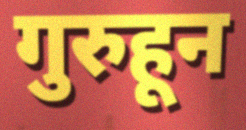
गुरुहून